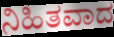
ನಿಹಿತವಾದ